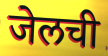
जेलची